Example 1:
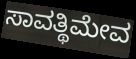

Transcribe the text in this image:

ಸಾವತ್ಥಿಮೇವ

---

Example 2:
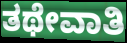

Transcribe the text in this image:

ತಥೇವಾತಿ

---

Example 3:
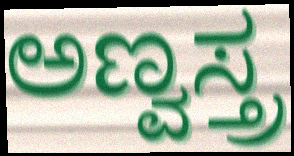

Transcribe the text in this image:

ಅಣ್ವಸ್ತ್ರ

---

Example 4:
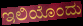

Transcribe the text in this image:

ಇಲಿಯೊಂದು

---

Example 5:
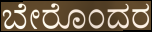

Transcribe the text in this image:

ಬೇರೊಂದರ